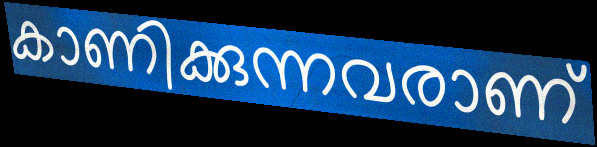
കാണിക്കുന്നവരാണ്